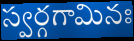
స్వర్గగామినః